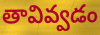
తావివ్వడం